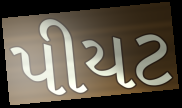
પીયટ